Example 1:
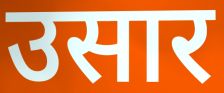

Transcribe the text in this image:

उसार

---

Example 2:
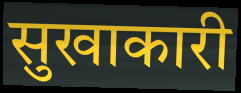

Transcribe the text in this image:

सुखाकारी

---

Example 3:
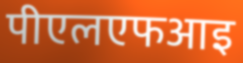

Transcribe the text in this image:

पीएलएफआइ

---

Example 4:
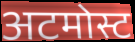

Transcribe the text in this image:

अटमोस्ट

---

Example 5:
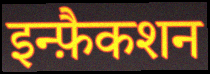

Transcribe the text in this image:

इन्फ़ैकशन